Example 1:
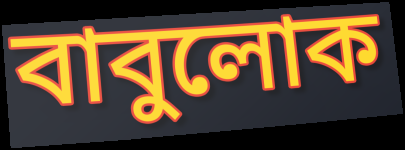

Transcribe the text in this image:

বাবুলোক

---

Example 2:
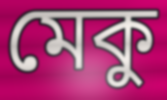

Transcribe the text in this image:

মেকু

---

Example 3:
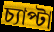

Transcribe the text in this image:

চ্যাপ্টা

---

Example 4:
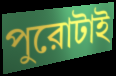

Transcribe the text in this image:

পুরোটাই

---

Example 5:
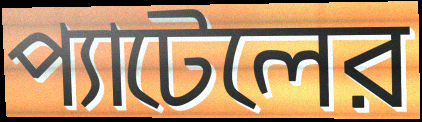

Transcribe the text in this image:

প্যাটেলের